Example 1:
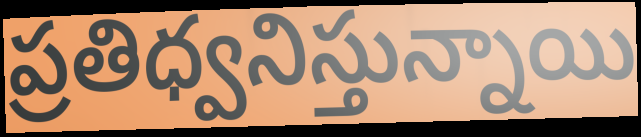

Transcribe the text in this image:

ప్రతిధ్వనిస్తున్నాయి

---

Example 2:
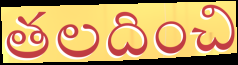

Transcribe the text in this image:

తలదించి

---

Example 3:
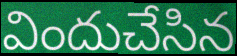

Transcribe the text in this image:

విందుచేసిన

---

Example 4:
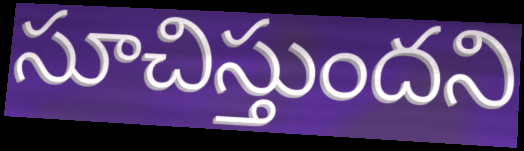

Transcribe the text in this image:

సూచిస్తుందని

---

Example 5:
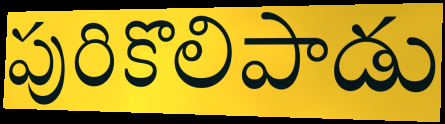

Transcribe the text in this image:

పురికొలిపాడు